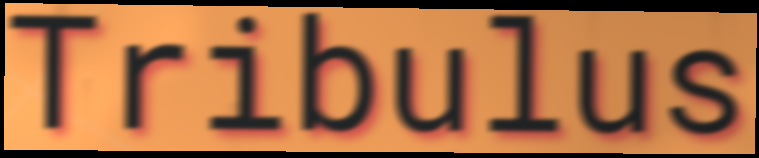
Tribulus